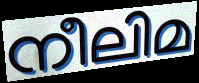
നീലിമ